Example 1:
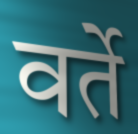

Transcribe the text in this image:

वर्ते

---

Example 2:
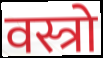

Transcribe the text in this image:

वस्त्रो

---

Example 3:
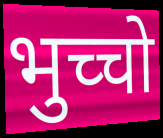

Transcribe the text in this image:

भुच्चो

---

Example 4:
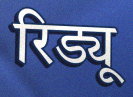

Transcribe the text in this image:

रिड्यू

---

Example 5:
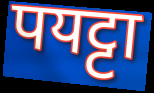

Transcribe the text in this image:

पयट्टा